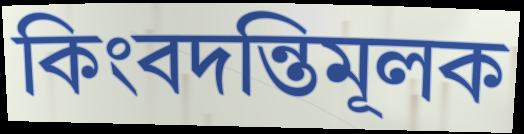
কিংবদন্তিমূলক